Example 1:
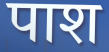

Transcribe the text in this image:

पाश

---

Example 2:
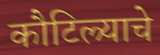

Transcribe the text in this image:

कौटिल्याचे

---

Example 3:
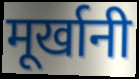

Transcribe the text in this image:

मूर्खानी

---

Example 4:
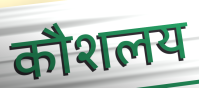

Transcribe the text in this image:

कौशलय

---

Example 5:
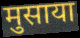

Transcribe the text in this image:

मुसाया